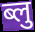
ब्लु